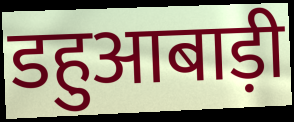
डहुआबाड़ी